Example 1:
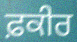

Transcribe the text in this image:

ਫ਼ਕੀਰ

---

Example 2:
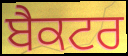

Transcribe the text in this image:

ਬੈਕਟਰ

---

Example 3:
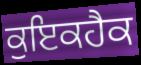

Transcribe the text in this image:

ਕੁਇਕਹੈਕ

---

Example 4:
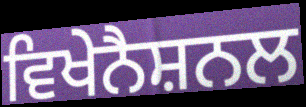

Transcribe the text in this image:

ਵਿਖੇਨੈਸ਼ਨਲ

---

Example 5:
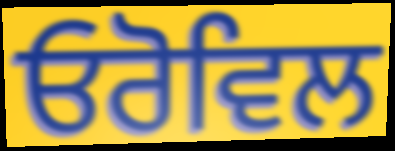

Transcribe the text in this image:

ਓਰੋਵਿਲ